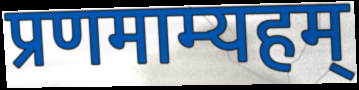
प्रणमाम्यहम्